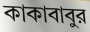
কাকাবাবুর